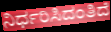
ನಿರ್ಧರಿಸಿದಂತಿದೆ